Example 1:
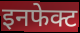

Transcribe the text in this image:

इनफेक्ट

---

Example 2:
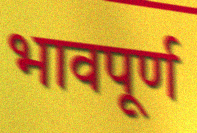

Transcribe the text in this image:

भावपूर्ण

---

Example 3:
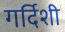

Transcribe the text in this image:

गर्दिशी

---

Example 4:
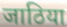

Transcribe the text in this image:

जाठिया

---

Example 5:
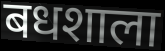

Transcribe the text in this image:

बधशाला